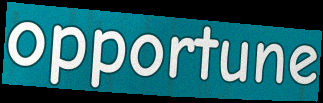
opportune